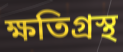
ক্ষতিগ্রস্থ